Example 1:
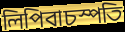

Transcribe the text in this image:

লিপিবাচস্পতি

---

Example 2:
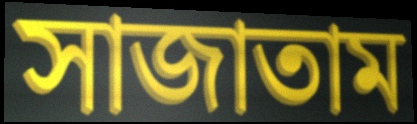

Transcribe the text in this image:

সাজাতাম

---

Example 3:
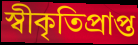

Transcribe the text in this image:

স্বীকৃতিপ্রাপ্ত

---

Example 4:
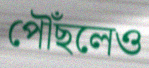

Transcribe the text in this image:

পৌঁছলেও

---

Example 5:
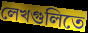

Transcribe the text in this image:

লেখগুলিতে